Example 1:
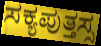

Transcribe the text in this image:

ಸಕ್ಯಪುತ್ತಸ್ಸ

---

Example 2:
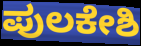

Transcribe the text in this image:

ಪುಲಕೇಶಿ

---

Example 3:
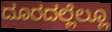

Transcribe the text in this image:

ದೂರದಲ್ಲೆಲ್ಲೂ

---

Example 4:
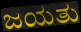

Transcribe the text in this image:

ಜಯತು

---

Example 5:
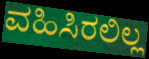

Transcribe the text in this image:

ವಹಿಸಿರಲಿಲ್ಲ